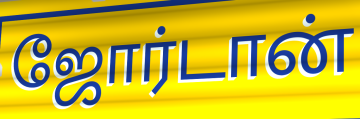
ஜோர்டான்